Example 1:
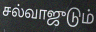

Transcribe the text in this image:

சல்வாஜுடும்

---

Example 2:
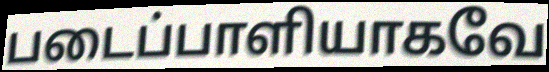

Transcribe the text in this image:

படைப்பாளியாகவே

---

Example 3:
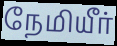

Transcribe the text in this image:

நேமியீர்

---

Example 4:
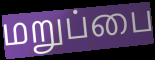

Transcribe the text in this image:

மறுப்பை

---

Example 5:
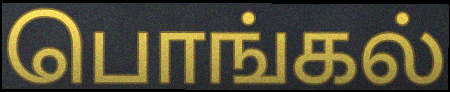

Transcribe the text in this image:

பொங்கல்